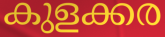
കുളക്കര